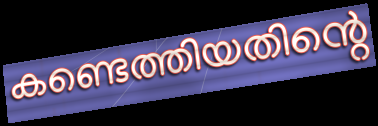
കണ്ടെത്തിയതിന്റെ